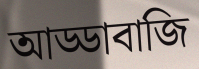
আড্ডাবাজি